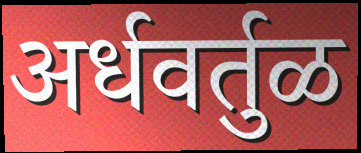
अर्धवर्तुळ